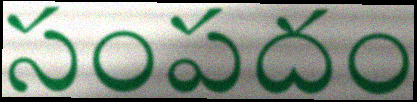
సంపదం